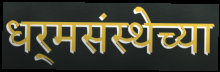
धर्मसंस्थेच्या